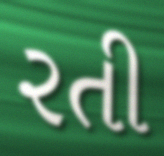
રતી